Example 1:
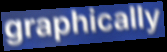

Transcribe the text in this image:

graphically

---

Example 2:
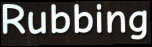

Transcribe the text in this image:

Rubbing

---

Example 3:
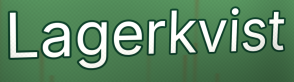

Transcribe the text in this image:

Lagerkvist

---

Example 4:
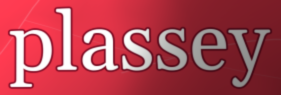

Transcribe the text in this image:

plassey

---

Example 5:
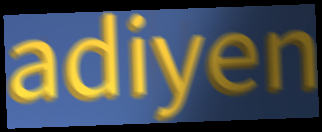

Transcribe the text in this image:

adiyen